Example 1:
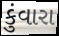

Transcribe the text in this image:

કુંવારા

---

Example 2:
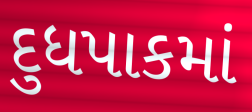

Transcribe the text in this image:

દુધપાકમાં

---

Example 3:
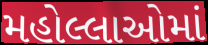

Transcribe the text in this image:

મહોલ્લાઓમાં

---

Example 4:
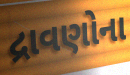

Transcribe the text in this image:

દ્રાવણોના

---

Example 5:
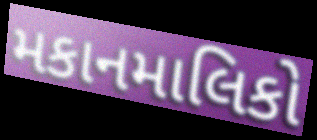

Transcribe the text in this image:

મકાનમાલિકો